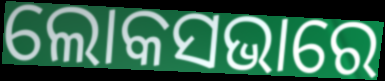
ଲୋକସଭାରେ